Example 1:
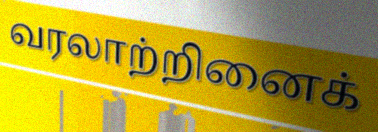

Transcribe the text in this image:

வரலாற்றினைக்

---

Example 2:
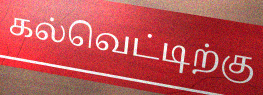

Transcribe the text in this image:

கல்வெட்டிற்கு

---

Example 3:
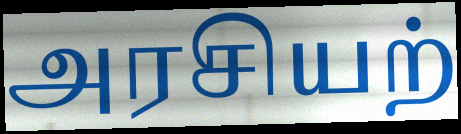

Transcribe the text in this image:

அரசியற்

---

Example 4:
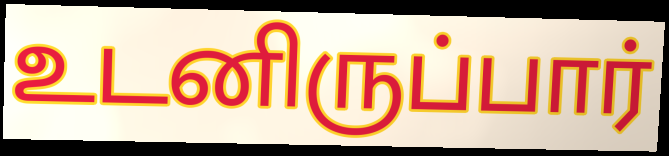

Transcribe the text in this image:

உடனிருப்பார்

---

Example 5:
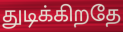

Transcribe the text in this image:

துடிக்கிறதே